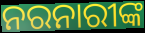
ନରନାରୀଙ୍କ